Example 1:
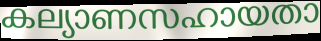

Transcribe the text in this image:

കല്യാണസഹായതാ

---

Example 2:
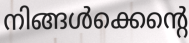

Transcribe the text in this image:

നിങ്ങൾക്കെന്റെ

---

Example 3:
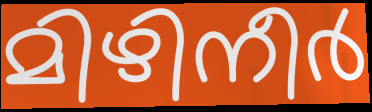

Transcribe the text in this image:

മിഴിനീർ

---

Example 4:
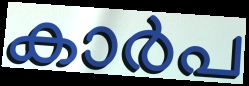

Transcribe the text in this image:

കാർപ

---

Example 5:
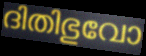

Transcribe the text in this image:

ദിതിഭുവോ